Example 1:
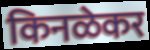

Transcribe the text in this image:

किनळेकर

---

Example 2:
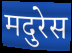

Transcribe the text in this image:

मदुरेस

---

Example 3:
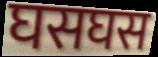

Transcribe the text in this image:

घसघस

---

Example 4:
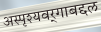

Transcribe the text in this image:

अस्पृश्यवर्गाबद्दल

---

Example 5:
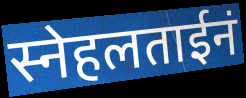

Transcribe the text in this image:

स्नेहलताईनं